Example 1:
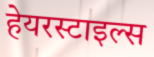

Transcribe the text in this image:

हेयरस्टाइल्स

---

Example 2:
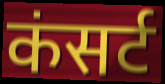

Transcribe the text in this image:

कंसर्ट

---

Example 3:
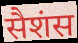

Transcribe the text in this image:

सैशंस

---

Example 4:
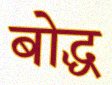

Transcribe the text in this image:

बोद्ध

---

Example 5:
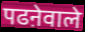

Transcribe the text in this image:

पढऩेवाले